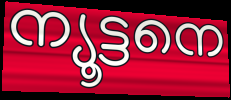
ന്യൂട്ടനെ